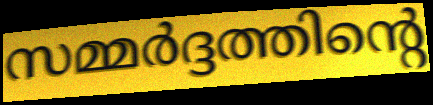
സമ്മർദ്ദത്തിന്റെ